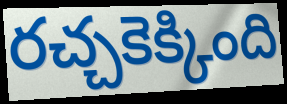
రచ్చకెక్కింది